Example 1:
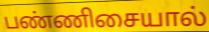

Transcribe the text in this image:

பண்ணிசையால்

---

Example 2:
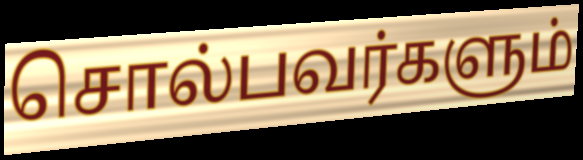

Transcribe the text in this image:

சொல்பவர்களும்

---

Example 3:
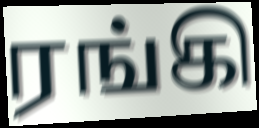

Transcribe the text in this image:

ரங்கி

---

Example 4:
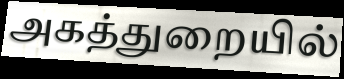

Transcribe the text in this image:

அகத்துறையில்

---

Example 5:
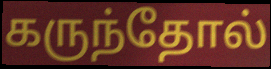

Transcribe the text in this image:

கருந்தோல்